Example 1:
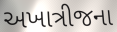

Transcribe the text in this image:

અખાત્રીજના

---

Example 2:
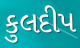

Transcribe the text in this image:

કુલદીપ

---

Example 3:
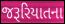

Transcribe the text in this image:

જરૂરિયાતના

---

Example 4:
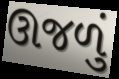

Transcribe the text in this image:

ઊજળું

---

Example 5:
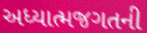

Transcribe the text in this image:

અધ્યાત્મજગતની